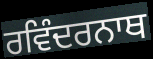
ਰਵਿੰਦਰਨਾਥ